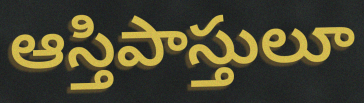
ఆస్తిపాస్తులూ